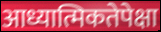
आध्यात्मिकतेपेक्षा